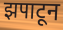
झपाटून